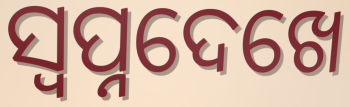
ସ୍ୱପ୍ନଦେଖେ